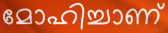
മോഹിച്ചാണ്